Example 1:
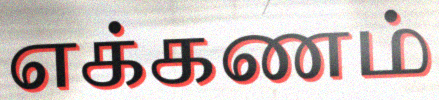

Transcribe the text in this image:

எக்கணம்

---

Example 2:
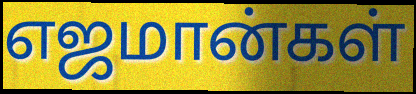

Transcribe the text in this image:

எஜமான்கள்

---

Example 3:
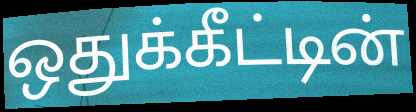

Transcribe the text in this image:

ஒதுக்கீட்டின்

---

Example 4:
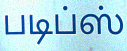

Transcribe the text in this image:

படிப்ஸ்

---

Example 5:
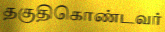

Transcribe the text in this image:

தகுதிகொண்டவர்